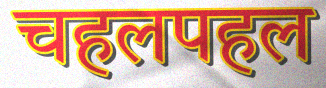
चहलपहल